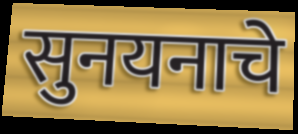
सुनयनाचे